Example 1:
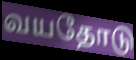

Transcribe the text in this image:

வயதோடு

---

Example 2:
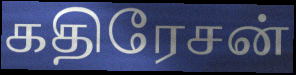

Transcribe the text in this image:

கதிரேசன்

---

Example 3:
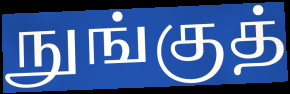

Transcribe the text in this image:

நுங்குத்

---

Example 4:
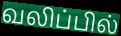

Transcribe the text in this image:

வலிப்பில்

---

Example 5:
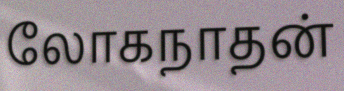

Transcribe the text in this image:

லோகநாதன்